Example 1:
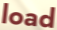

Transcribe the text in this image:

load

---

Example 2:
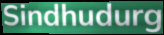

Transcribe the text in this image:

Sindhudurg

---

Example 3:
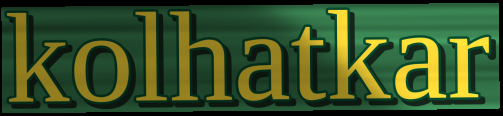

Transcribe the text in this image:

kolhatkar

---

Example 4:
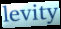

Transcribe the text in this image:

levity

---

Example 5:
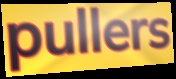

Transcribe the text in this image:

pullers